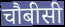
चौबीसी